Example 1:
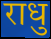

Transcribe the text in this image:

राधु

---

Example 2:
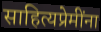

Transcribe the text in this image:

साहित्यप्रेमींना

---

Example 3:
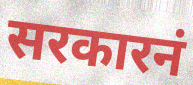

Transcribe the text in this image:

सरकारनं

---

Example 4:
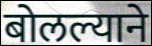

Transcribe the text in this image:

बोलल्याने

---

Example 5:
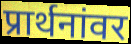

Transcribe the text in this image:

प्रार्थनांवर